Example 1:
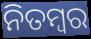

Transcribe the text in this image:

ନିତମ୍ୱର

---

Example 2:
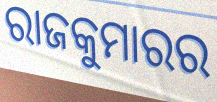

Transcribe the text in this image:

ରାଜକୁମାରର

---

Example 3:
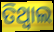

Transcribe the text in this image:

ତିଥ୍ୱାଲ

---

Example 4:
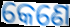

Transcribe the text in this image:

କେଣେ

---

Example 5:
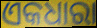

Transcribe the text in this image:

ଏକଧାରା